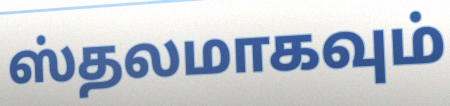
ஸ்தலமாகவும்